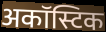
अकॉस्टिक